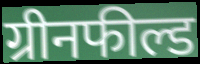
ग्रीनफील्ड